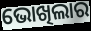
ଭୋଖିଲାର